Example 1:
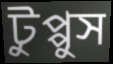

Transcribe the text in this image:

টুপ্পুস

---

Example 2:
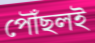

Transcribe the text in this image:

পৌঁছলই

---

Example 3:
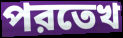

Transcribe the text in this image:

পরতেখ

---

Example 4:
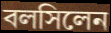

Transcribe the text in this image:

বলসিলেন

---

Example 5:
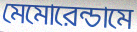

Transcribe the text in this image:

মেমোরেন্ডামে